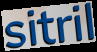
sitril